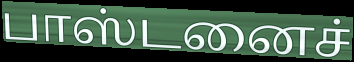
பாஸ்டனைச்